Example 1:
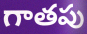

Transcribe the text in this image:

గాతపు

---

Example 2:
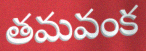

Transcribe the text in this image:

తమవంక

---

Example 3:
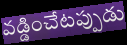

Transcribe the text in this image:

వడ్డించేటప్పుడు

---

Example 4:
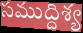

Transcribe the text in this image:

సముద్దిశ్య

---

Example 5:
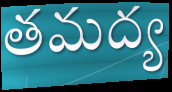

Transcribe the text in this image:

తమద్య